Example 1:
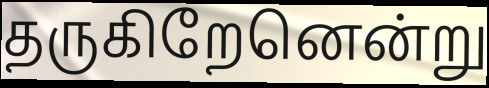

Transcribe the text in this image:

தருகிறேனென்று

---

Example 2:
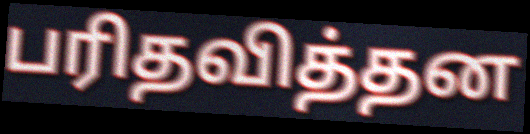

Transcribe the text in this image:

பரிதவித்தன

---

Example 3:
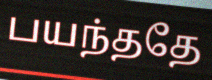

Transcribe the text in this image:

பயந்ததே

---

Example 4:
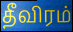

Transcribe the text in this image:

தீவிரம்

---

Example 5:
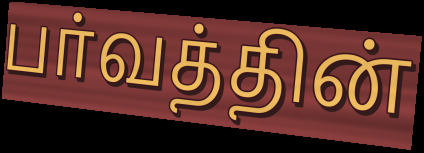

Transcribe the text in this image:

பர்வத்தின்